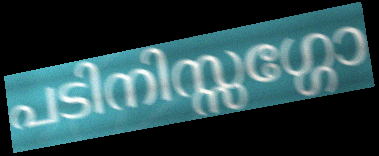
പടിനിസ്സഗ്ഗോ